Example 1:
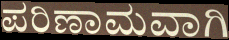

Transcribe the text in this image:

ಪರಿಣಾಮವಾಗಿ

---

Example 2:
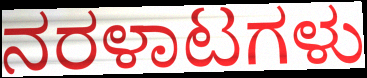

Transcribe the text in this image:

ನರಳಾಟಗಳು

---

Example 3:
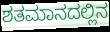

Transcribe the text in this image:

ಶತಮಾನದಲ್ಲಿನ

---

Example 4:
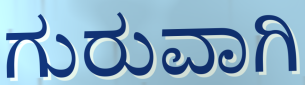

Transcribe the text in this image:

ಗುರುವಾಗಿ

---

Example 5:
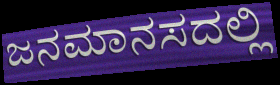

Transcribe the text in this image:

ಜನಮಾನಸದಲ್ಲಿ